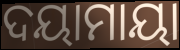
ଦୟାମାୟା